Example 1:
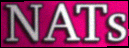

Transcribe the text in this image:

NATs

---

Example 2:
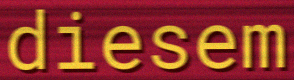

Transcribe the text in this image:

diesem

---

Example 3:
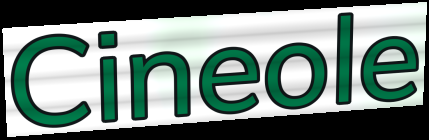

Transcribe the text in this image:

Cineole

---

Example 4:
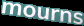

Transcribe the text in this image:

mourns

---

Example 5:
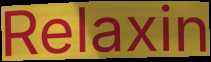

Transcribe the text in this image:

Relaxin